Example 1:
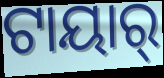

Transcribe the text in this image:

ଟାୟାର୍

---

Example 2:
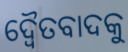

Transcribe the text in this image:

ଦ୍ୱୈତବାଦକୁ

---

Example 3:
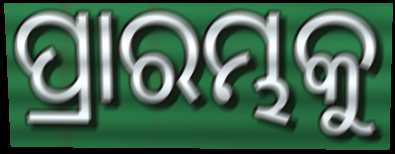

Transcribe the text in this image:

ପ୍ରାରମ୍ଭକୁ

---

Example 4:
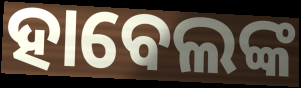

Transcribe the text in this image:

ହାବେଲଙ୍କ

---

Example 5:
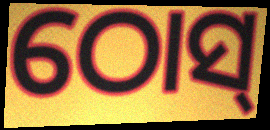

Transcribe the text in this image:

ଠୋସ୍